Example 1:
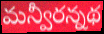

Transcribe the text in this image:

మన్వీరన్నథ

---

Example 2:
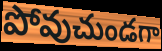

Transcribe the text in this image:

పోవుచుండగా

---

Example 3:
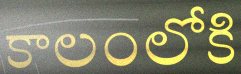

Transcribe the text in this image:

కాలంలోకి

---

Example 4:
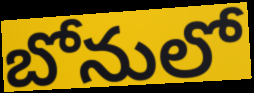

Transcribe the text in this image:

బోనులో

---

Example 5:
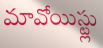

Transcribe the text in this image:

మావోయిస్ట్లు